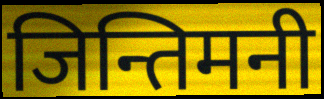
जिन्तिमनी